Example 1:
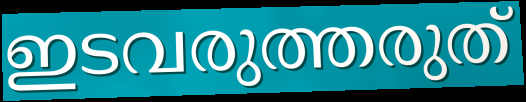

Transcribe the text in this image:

ഇടവരുത്തരുത്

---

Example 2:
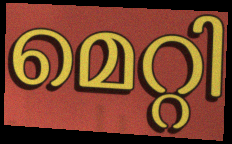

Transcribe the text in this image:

മെറ്റി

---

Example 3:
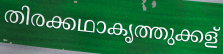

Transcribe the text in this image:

തിരക്കഥാകൃത്തുക്കള്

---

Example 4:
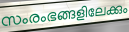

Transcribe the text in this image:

സംരംഭങ്ങളിലേക്കും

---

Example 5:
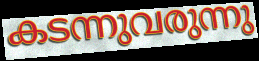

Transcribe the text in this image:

കടന്നുവരുന്നു